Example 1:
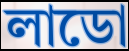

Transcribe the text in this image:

লাডো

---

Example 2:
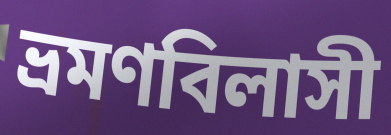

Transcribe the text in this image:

ভ্রমণবিলাসী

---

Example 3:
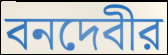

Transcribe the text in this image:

বনদেবীর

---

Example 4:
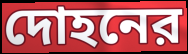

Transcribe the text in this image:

দোহনের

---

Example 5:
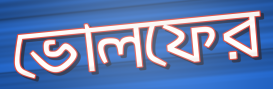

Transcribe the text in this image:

ভোলফের